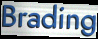
Brading